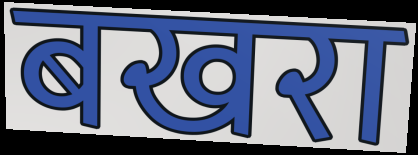
बखरा